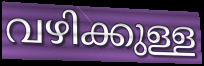
വഴിക്കുള്ള